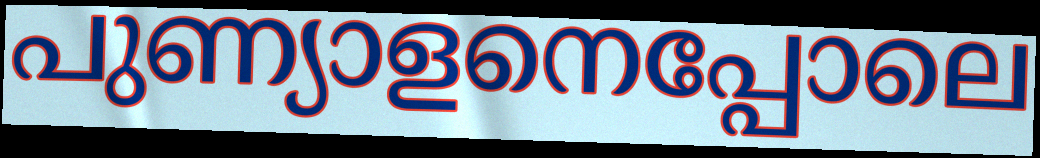
പുണ്യാളനെപ്പോലെ